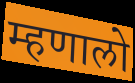
म्हणालो